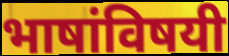
भाषांविषयी